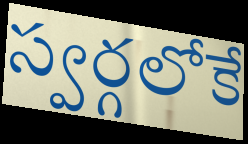
స్వర్గలోకే